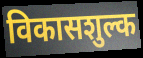
विकासशुल्क